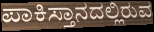
ಪಾಕಿಸ್ತಾನದಲ್ಲಿರುವ